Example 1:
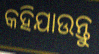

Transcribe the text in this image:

କହିଯାଉନ୍ତୁ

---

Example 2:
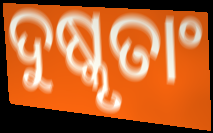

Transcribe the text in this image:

ଦୁଷ୍କୃତାଂ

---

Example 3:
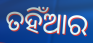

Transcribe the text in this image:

ତହିଁଆର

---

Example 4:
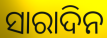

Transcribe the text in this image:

ସାରାଦିନ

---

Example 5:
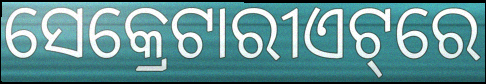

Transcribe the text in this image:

ସେକ୍ରେଟାରୀଏଟ୍‌ରେ